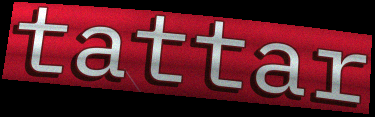
tattar